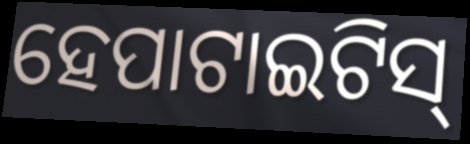
ହେପାଟାଇଟିସ୍